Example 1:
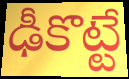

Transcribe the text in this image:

ఢీకొట్టే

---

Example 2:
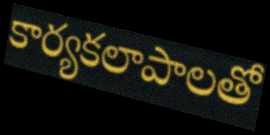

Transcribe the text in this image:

కార్యకలాపాలతో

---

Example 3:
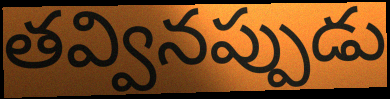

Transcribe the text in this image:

తవ్వినప్పుడు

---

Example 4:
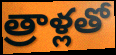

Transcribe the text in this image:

త్రాళ్లతో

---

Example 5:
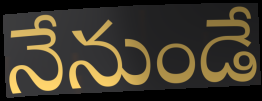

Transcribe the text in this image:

నేనుండే